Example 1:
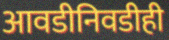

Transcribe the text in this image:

आवडीनिवडीही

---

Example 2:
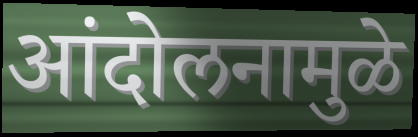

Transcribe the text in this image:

आंदोलनामुळे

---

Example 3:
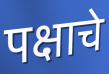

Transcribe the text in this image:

पक्षाचे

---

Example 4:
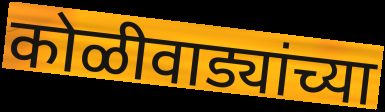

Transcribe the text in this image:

कोळीवाड्यांच्या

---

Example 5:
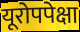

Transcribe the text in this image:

यूरोपपेक्षा